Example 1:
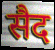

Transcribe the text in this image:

सैद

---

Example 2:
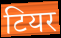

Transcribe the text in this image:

टियर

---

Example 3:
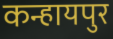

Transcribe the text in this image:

कन्हायपुर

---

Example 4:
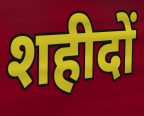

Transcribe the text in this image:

शहीदों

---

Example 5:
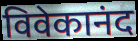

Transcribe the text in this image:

विवेकानंद